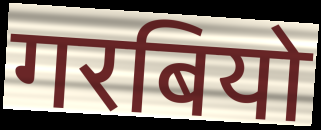
गरबियो